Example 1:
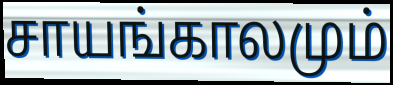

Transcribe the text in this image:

சாயங்காலமும்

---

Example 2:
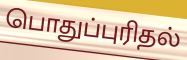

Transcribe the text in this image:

பொதுப்புரிதல்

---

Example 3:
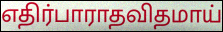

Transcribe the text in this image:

எதிர்பாராதவிதமாய்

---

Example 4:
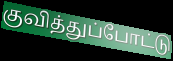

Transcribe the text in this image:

குவித்துப்போட்டு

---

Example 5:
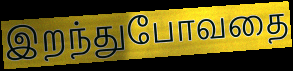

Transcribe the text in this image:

இறந்துபோவதை